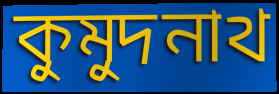
কুমুদনাথ